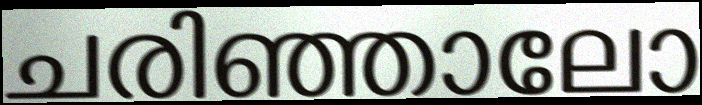
ചരിഞ്ഞാലോ